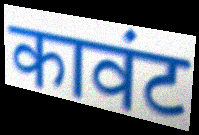
कावंट